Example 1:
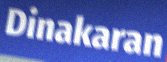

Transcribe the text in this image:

Dinakaran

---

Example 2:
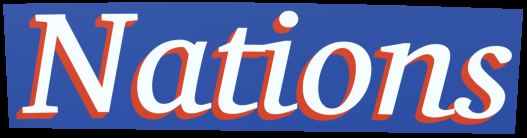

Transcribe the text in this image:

Nations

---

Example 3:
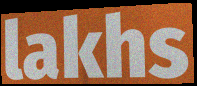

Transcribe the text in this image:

lakhs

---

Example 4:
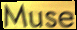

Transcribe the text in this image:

Muse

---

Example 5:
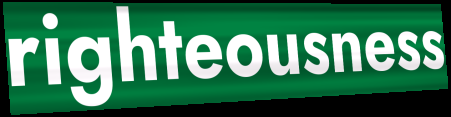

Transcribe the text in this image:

righteousness